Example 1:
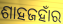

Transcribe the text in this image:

ଶାହଜହାଁର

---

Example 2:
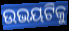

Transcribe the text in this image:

ଉଭୟଟିକୁ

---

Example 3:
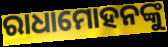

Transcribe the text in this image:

ରାଧାମୋହନଙ୍କୁ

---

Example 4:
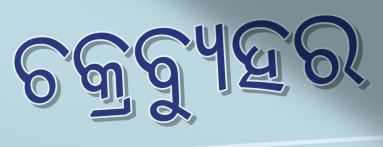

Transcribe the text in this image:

ଚକ୍ରବ୍ୟୁହର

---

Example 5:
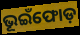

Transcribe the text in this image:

ଭୂଇଁଫୋଡ଼